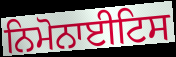
ਨਿਮੋਨਾਈਟਿਸ